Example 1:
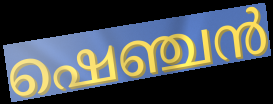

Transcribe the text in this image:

ഷെഞ്ചൻ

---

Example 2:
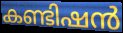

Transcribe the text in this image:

കണ്ടിഷൻ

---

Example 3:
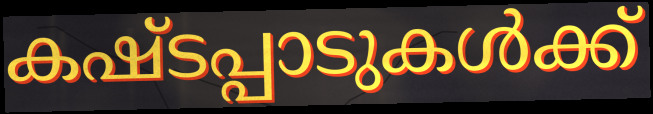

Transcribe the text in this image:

കഷ്ടപ്പാടുകൾക്ക്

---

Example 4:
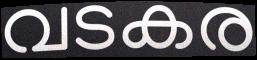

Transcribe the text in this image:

വടകര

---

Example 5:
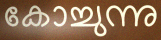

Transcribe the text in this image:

കോച്ചുന്നു